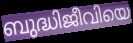
ബുദ്ധിജീവിയെ